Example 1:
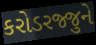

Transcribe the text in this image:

કરોડરજ્જુને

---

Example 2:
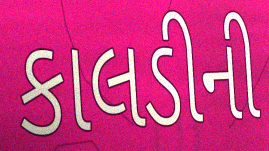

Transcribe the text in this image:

કાલડીની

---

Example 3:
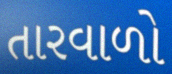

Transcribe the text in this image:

તારવાળો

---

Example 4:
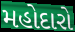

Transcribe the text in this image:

મહોદારો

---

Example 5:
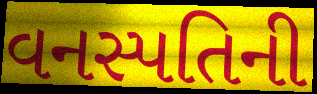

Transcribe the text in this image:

વનસ્પતિની